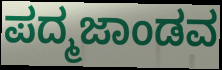
ಪದ್ಮಜಾಂಡವ